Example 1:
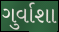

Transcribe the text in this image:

ગુર્વાશા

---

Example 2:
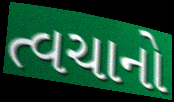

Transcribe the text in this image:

ત્વચાનો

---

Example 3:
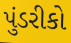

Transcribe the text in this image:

પુંડરીકો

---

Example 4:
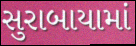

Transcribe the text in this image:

સુરાબાયામાં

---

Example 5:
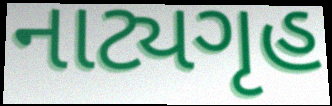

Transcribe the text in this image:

નાટ્યગૃહ